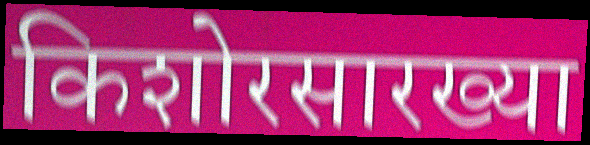
किशोरसारख्या